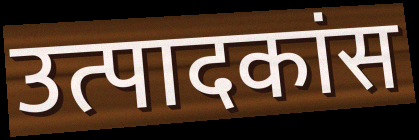
उत्पादकांस